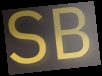
SB